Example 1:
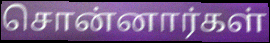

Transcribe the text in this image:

சொன்னார்கள்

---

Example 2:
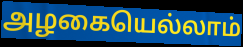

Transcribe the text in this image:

அழகையெல்லாம்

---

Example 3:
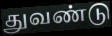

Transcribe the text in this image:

துவண்டு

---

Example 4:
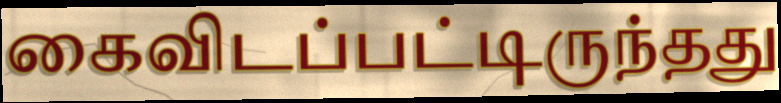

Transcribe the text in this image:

கைவிடப்பட்டிருந்தது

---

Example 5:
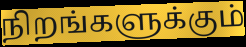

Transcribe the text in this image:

நிறங்களுக்கும்